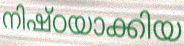
നിഷ്ഠയാക്കിയ